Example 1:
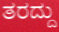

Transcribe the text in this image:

ತರದ್ದು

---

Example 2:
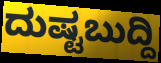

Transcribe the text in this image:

ದುಷ್ಟಬುದ್ದಿ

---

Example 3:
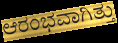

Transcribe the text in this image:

ಆರಂಭವಾಗಿತ್ತು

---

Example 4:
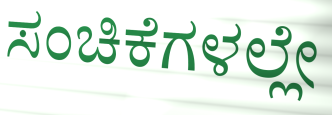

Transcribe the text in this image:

ಸಂಚಿಕೆಗಳಲ್ಲೇ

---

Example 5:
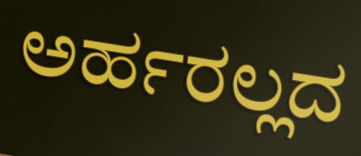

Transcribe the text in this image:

ಅರ್ಹರಲ್ಲದ